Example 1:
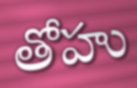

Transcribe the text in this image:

తోహు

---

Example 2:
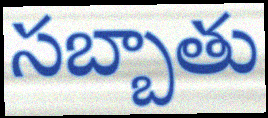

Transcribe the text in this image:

సబ్బాతు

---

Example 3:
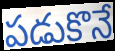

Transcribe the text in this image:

పడుకొనే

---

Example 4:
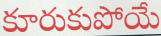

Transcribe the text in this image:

కూరుకుపోయే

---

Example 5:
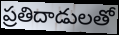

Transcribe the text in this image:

ప్రతిదాడులతో